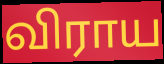
விராய